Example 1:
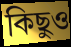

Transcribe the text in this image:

কিছুও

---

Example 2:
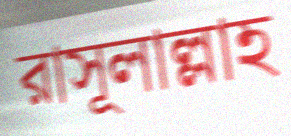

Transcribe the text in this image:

রাসূলাল্লাহ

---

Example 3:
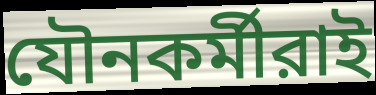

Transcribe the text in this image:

যৌনকর্মীরাই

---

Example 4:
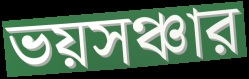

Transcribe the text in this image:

ভয়সঞ্চার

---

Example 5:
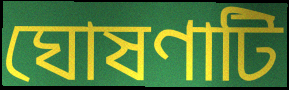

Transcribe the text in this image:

ঘোষণাটি